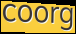
coorg